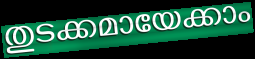
തുടക്കമായേക്കാം